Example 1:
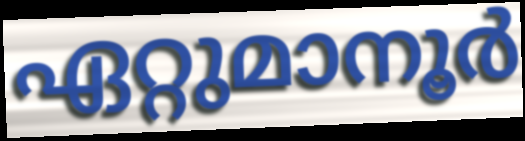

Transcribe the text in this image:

ഏറ്റുമാനൂർ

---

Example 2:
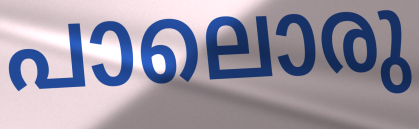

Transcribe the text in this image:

പാലൊരു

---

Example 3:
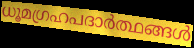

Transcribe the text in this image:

ധൂമഗ്രഹപദാർത്ഥങ്ങൾ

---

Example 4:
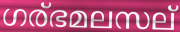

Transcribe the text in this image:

ഗര്ഭമലസല്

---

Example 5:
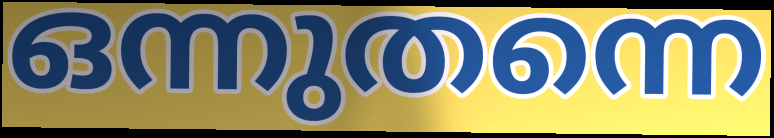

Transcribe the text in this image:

ഒന്നുതന്നെ